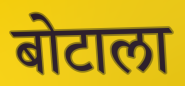
बोटाला